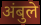
अंबुले